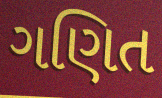
ગણિત